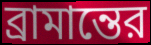
ব্রামান্তের